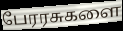
பேரரசுகளை